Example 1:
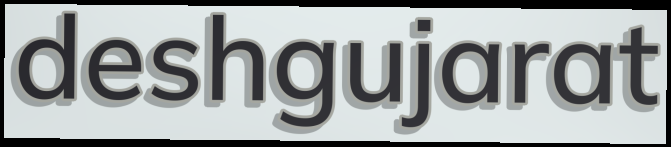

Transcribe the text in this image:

deshgujarat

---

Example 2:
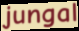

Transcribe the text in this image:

jungal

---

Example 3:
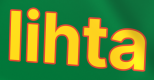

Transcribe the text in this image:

lihta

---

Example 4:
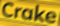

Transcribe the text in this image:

Crake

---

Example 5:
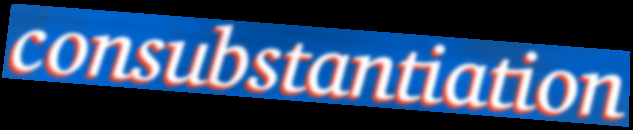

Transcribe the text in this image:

consubstantiation